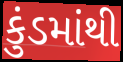
કુંડમાંથી